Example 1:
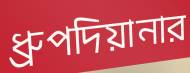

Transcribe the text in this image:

ধ্রুপদিয়ানার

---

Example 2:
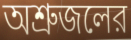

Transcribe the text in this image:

অশ্রুজলের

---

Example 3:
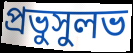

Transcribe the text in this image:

প্রভুসুলভ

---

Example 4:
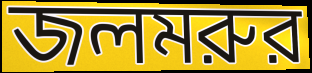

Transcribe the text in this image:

জলমরুর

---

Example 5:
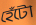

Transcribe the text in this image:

হেঁটো